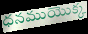
ధనముయొక్క